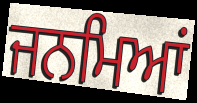
ਜਨਮਿਆਂ